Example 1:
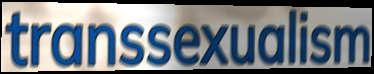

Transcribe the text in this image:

transsexualism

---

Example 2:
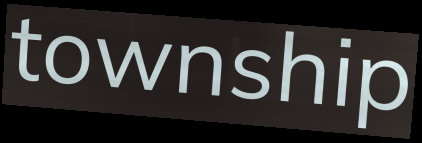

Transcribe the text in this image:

township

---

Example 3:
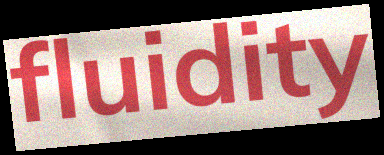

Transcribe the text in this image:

fluidity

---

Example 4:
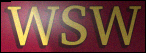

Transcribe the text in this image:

WSW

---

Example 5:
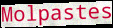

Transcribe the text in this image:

Molpastes